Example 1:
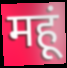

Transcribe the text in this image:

महूं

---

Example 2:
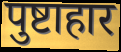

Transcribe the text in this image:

पुष्टाहार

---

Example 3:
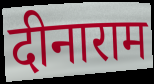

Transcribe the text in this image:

दीनाराम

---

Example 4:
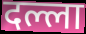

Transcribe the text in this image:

दल्ला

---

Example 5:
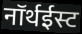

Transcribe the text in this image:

नॉर्थईस्ट